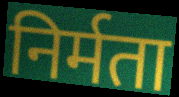
निर्मता